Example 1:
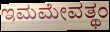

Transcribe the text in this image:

ಇಮಮೇವತ್ಥಂ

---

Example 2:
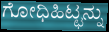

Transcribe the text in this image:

ಗೋಧಿಹಿಟ್ಟನ್ನು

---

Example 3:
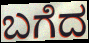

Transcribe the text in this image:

ಬಗೆದ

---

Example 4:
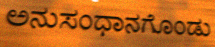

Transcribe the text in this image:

ಅನುಸಂಧಾನಗೊಂಡು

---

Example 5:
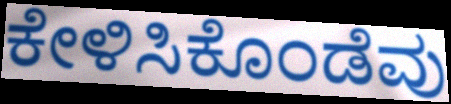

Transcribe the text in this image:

ಕೇಳಿಸಿಕೊಂಡೆವು